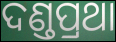
ଦଣ୍ଡପ୍ରଥା